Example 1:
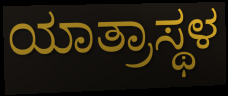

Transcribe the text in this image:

ಯಾತ್ರಾಸ್ಥಳ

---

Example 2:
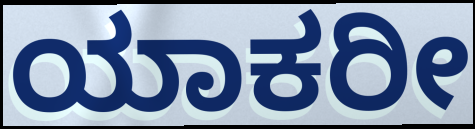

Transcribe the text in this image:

ಯಾಕರೀ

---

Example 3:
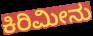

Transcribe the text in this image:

ಕಿರಿಮೀನು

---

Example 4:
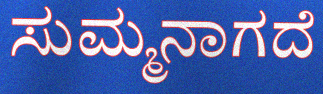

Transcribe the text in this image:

ಸುಮ್ಮನಾಗದೆ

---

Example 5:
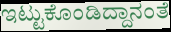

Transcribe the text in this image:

ಇಟ್ಟುಕೊಂಡಿದ್ದಾನಂತೆ